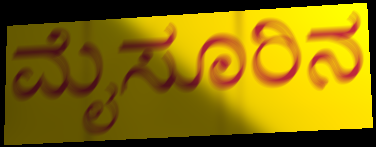
ಮೈಸೂರಿನ